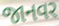
જાનવર